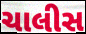
ચાલીસ